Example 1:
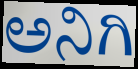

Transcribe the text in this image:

ಅನಿಗಿ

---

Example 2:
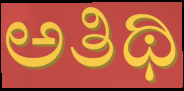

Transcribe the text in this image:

ಅತಿಥಿ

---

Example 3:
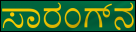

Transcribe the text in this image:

ಸಾರಂಗ್‌ನ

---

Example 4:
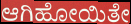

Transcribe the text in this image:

ಆಗಿಹೋಯಿತೇ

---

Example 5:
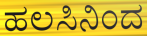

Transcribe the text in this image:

ಹಲಸಿನಿಂದ